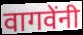
वागवेंनी